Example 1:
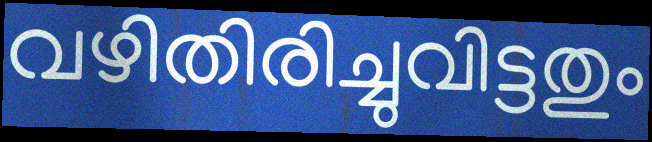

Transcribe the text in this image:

വഴിതിരിച്ചുവിട്ടതും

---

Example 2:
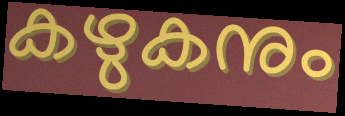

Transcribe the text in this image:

കഴുകനും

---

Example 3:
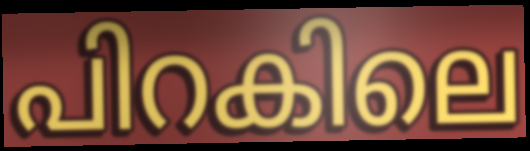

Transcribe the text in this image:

പിറകിലെ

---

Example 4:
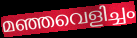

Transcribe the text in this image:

മഞ്ഞവെളിച്ചം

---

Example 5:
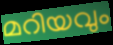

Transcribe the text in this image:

മറിയവും